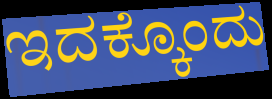
ಇದಕ್ಕೊಂದು